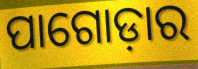
ପାଗୋଡ଼ାର